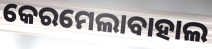
କେରମେଲାବାହାଲ